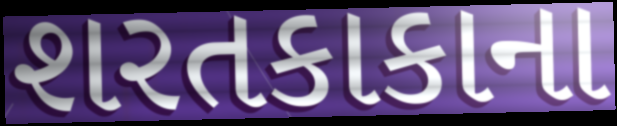
શરતકાકાના